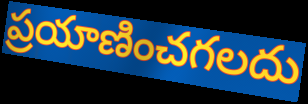
ప్రయాణించగలదు